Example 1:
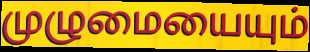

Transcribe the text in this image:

முழுமையையும்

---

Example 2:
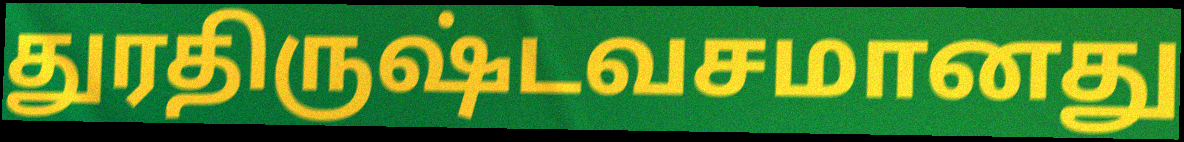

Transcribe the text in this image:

துரதிருஷ்டவசமானது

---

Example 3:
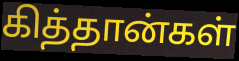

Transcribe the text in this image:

கித்தான்கள்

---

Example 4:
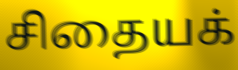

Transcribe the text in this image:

சிதையக்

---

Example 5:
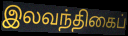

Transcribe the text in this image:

இலவந்திகைப்